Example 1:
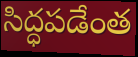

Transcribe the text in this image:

సిద్ధపడేంత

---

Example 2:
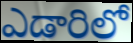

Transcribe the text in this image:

ఎడారిలో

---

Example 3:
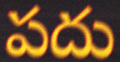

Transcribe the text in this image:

పదు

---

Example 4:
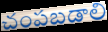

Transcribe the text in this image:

చంపబడాలి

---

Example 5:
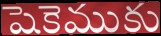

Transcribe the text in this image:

షెకెముకు